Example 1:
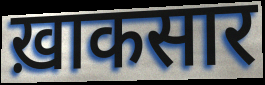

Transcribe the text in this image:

ख़ाकसार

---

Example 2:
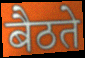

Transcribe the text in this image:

बैठते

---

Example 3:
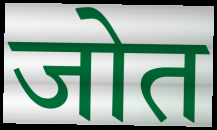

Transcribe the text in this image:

जोत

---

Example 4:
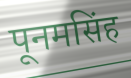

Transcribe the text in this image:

पूनमसिंह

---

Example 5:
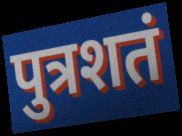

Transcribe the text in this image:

पुत्रशतं